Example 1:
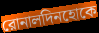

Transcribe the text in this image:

রোনালদিনহোকে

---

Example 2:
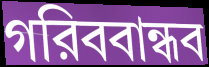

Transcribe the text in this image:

গরিববান্ধব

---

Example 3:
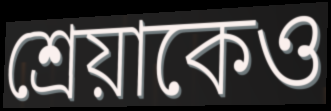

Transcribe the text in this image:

শ্রেয়াকেও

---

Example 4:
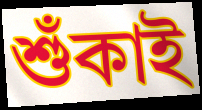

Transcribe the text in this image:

শুঁকাই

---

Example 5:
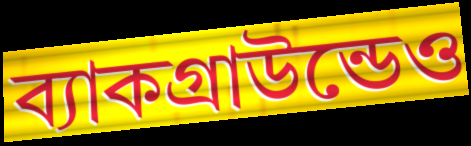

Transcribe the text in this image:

ব্যাকগ্রাউন্ডেও